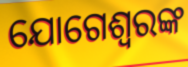
ଯୋଗେଶ୍ୱରଙ୍କ